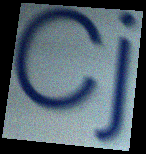
Cj